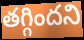
తగ్గిందని